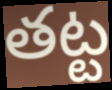
తట్ట